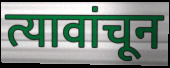
त्यावांचून